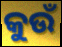
କୁଉଁ